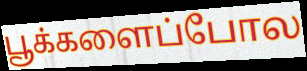
பூக்களைப்போல